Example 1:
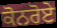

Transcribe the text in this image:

ਕੋਨਰੋਏ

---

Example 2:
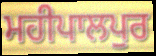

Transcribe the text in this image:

ਮਹੀਪਾਲਪੁਰ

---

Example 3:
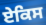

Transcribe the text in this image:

ਏਕਿਸ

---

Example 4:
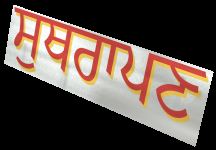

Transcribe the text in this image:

ਸੁਥਰਾਪਣ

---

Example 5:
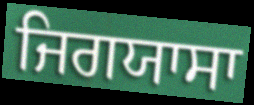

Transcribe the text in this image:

ਜਿਗਯਾਸਾ